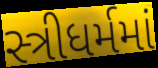
સ્ત્રીધર્મમાં